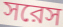
সরেস